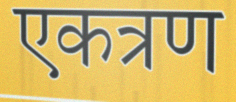
एकत्रण